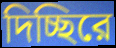
দিচ্ছিরে